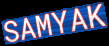
SAMYAK